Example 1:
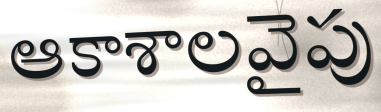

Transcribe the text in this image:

ఆకాశాలవైపు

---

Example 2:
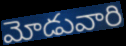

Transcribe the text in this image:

మోడువారి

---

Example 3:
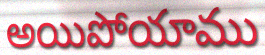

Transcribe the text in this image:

అయిపోయాము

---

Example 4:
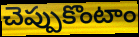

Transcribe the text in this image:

చెప్పుకొంటాం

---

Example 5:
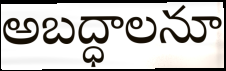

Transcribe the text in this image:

అబద్ధాలనూ